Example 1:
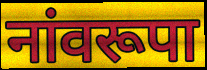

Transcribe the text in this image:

नांवरूपा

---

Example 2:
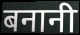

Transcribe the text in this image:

बनानी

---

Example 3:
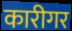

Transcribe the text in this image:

कारीगर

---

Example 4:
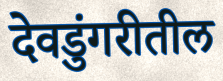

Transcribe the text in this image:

देवडुंगरीतील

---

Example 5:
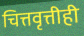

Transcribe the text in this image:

चित्तवृत्तीही